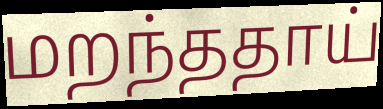
மறந்ததாய்